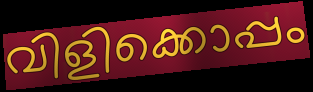
വിളിക്കൊപ്പം